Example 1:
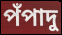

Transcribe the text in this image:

পঁপাদু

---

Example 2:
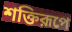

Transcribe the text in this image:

শক্তিরূপে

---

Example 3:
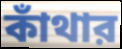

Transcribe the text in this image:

কাঁথার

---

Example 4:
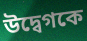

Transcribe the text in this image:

উদ্বেগকে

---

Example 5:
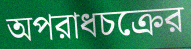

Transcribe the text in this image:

অপরাধচক্রের